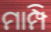
ମାମ୍ପି